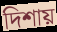
দিশায়